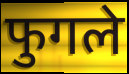
फुगले